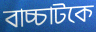
বাচ্চাটকে